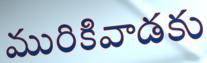
మురికివాడకు